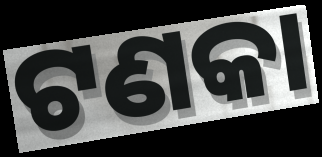
ଟଣକା